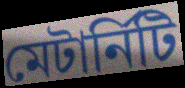
মেটার্নিটি